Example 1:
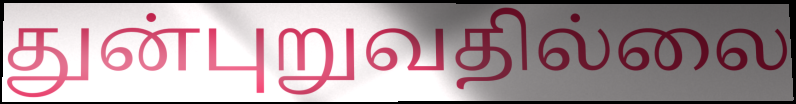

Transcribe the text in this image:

துன்புறுவதில்லை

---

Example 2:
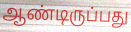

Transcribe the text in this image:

ஆண்டிருப்பது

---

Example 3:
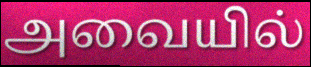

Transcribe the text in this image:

அவையில்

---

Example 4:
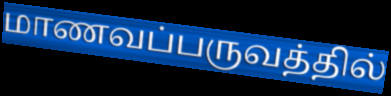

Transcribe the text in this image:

மாணவப்பருவத்தில்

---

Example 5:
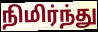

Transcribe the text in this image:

நிமிர்ந்து